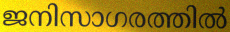
ജനിസാഗരത്തിൽ